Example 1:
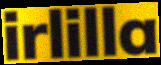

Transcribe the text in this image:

irlilla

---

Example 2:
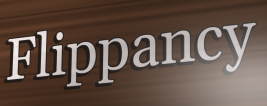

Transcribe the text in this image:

Flippancy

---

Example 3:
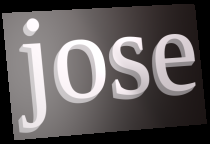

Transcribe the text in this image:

jose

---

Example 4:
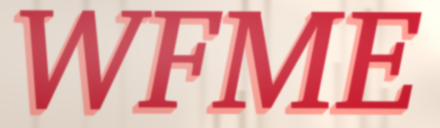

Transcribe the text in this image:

WFME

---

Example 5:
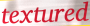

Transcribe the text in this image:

textured